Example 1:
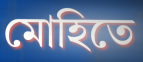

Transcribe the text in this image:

মোহিতে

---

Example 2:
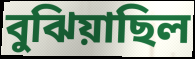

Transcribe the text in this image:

বুঝিয়াছিল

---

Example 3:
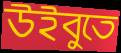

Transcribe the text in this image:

উইবুতে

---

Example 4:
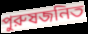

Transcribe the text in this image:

পুরুষজনিত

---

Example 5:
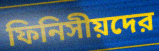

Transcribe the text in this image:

ফিনিসীয়দের